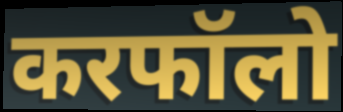
करफॉलो